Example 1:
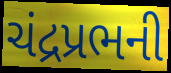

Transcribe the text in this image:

ચંદ્રપ્રભની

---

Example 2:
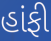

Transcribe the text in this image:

હાંફી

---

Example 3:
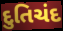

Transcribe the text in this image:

દુતિચંદ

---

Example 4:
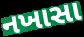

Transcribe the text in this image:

નખાસા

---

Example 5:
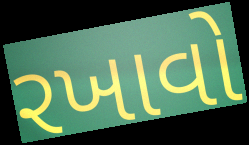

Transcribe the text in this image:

રખાવો